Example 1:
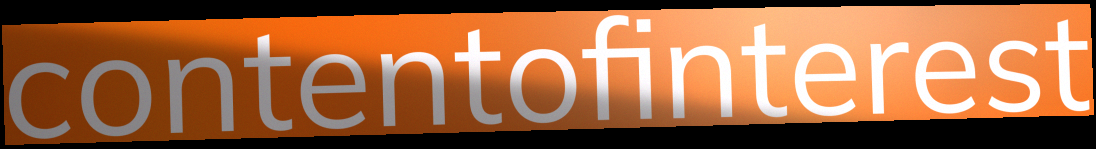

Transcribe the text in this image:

contentofinterest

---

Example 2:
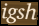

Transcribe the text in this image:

igsh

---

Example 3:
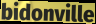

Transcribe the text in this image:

bidonville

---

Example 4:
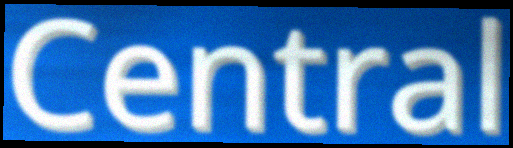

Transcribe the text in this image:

Central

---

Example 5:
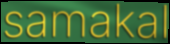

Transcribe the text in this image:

samakal